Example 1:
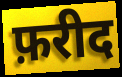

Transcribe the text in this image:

फ़रीद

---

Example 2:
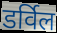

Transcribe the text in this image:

डर्विल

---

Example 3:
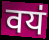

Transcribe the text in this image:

वय॑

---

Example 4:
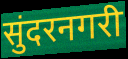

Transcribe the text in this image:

सुंदरनगरी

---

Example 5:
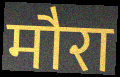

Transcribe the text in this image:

मौरा